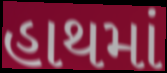
હાથમાં